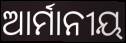
ଆର୍ମାନୀୟ